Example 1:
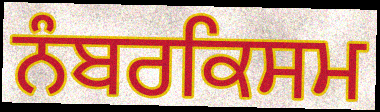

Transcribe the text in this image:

ਨੰਬਰਕਿਸਮ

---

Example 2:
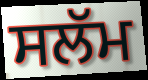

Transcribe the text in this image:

ਸਲੱਮ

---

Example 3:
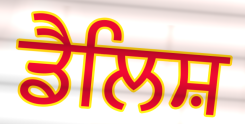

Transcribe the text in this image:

ਡੈਲਿਸ਼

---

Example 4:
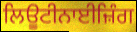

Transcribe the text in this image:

ਲਿਊਟੀਨਾਈਜ਼ਿੰਗ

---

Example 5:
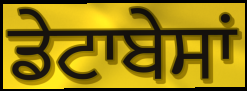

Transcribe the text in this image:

ਡੇਟਾਬੇਸਾਂ